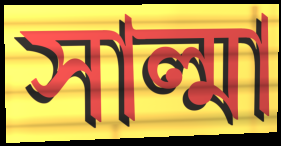
সাল্মা